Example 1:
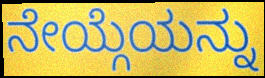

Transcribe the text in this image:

ನೇಯ್ಗೆಯನ್ನು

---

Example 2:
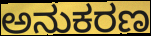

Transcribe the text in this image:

ಅನುಕರಣ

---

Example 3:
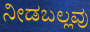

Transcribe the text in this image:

ನೀಡಬಲ್ಲವು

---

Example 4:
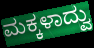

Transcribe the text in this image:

ಮಕ್ಕಳಾದ್ವು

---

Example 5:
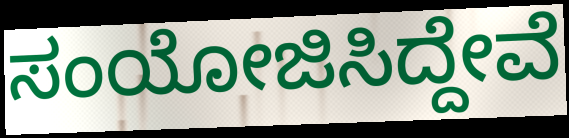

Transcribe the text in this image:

ಸಂಯೋಜಿಸಿದ್ದೇವೆ